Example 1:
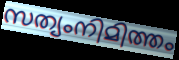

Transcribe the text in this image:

സത്യംനിമിത്തം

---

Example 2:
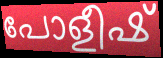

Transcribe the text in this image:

പോളീഷ്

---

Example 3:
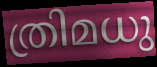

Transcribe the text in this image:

ത്രിമധു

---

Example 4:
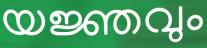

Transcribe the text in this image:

യജ്ഞവും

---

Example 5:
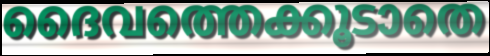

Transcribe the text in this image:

ദൈവത്തെക്കൂടാതെ